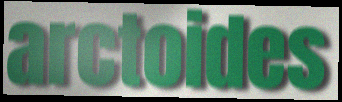
arctoides